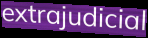
extrajudicial